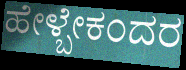
ಹೇಳ್ಬೇಕಂದರ